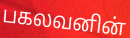
பகலவனின்